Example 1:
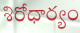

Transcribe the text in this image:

శిరోధార్యం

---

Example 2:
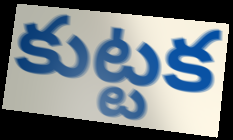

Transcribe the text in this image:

కుట్టక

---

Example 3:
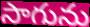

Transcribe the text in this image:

సాగును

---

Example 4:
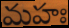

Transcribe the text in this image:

మహః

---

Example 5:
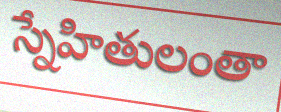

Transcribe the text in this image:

స్నేహితులంతా